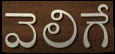
వెలిగే